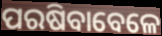
ପରଷିବାବେଳେ